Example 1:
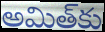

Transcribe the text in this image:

అమిత్‌కు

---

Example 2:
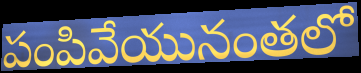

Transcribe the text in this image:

పంపివేయునంతలో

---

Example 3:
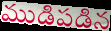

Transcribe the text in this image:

ముడిపడిన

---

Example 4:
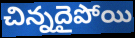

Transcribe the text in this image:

చిన్నదైపోయి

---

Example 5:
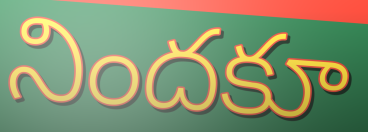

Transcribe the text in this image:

నిందకూ